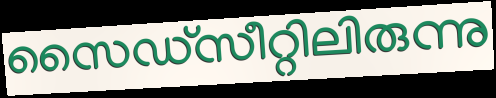
സൈഡ്സീറ്റിലിരുന്നു